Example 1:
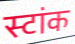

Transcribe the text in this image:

स्टांक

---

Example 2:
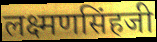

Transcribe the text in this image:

लक्ष्मणसिंहजी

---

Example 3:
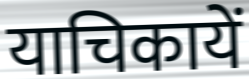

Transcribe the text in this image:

याचिकायें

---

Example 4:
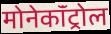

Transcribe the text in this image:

मोनेकॉंट्रोल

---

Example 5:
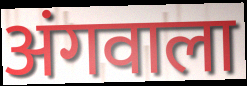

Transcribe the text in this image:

अंगवाला